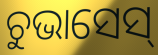
ଚୁଭାସେସ୍